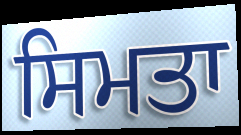
ਸਿਮਤਾ